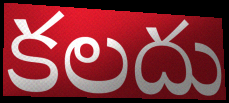
కలదు